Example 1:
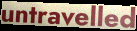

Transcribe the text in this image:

untravelled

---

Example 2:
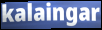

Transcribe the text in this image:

kalaingar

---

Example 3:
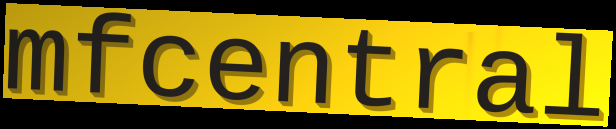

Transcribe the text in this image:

mfcentral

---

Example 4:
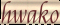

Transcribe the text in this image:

hwako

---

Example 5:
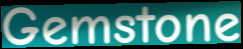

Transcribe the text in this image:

Gemstone